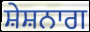
ਸ਼ੇਸ਼ਨਾਗ